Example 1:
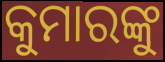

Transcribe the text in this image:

କୁମାରଙ୍କୁ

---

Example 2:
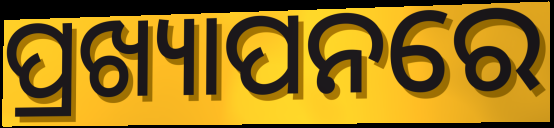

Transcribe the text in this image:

ପ୍ରଖ୍ୟାପନରେ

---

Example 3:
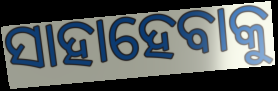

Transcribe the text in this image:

ସାହାହେବାକୁ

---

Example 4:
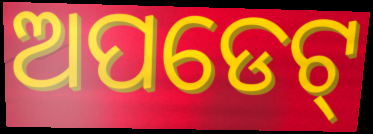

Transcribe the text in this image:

ଅପଡେଟ୍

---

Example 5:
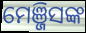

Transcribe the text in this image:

ମେଞ୍ଜିସଙ୍କ